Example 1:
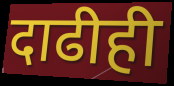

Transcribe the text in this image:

दाढीही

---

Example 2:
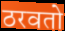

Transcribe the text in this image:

ठरवतो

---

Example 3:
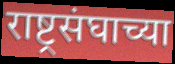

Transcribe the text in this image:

राष्ट्रसंघाच्या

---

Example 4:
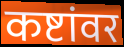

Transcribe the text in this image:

कष्टांवर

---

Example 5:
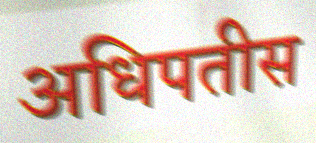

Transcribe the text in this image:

अधिपतीस